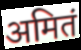
अमितं